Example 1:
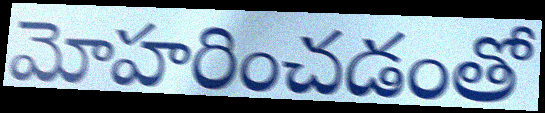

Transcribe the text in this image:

మోహరించడంతో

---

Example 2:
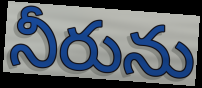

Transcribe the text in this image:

నీరును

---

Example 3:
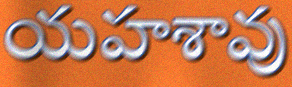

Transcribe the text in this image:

యహశావు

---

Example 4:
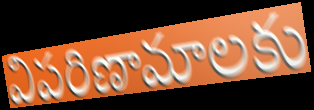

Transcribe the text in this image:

విపరిణామాలకు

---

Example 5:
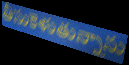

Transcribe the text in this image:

తీసుకెళుతున్నాను